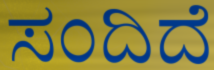
ಸಂದಿದೆ